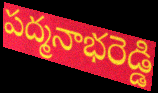
పద్మనాభరెడ్డి